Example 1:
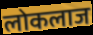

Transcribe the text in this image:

लोकलाज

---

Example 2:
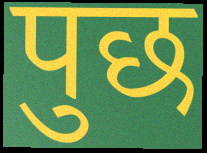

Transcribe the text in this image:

पुछ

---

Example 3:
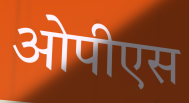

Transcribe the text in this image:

ओपीएस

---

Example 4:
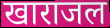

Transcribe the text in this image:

खाराजल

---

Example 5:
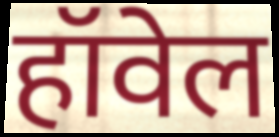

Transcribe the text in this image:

हॉवेल